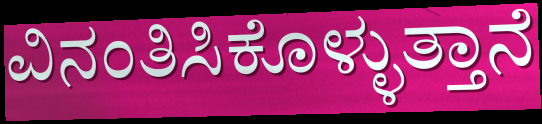
ವಿನಂತಿಸಿಕೊಳ್ಳುತ್ತಾನೆ